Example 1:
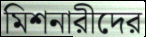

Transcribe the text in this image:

মিশনারীদের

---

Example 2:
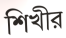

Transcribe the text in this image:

শিখীর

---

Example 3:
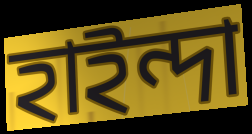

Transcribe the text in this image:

হাইন্দা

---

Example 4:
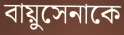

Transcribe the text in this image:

বায়ুসেনাকে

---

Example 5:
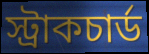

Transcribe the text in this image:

স্ট্রাকচার্ড